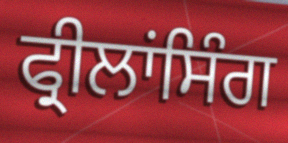
ਫ੍ਰੀਲਾਂਸਿੰਗ